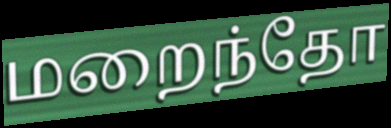
மறைந்தோ